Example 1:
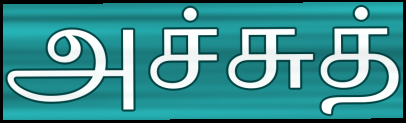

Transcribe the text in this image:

அச்சுத்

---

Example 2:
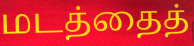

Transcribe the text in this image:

மடத்தைத்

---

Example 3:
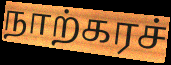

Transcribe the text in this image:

நாற்கரச்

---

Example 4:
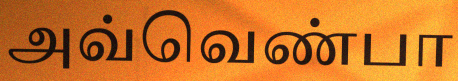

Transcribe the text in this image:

அவ்வெண்பா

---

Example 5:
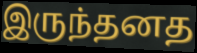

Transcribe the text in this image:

இருந்தனத